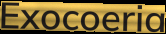
Exocoeria